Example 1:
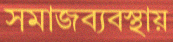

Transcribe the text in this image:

সমাজব্যবস্থায়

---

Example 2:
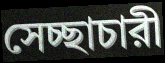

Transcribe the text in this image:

সেচ্ছাচারী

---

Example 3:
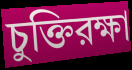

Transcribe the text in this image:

চুক্তিরক্ষা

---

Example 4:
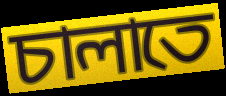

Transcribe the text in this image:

চালাতে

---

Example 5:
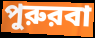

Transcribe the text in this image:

পুরুরবা